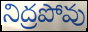
నిద్రపోవు